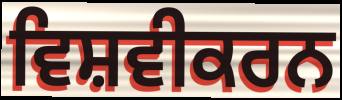
ਵਿਸ਼ਵੀਕਰਨ